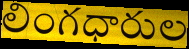
లింగధారుల